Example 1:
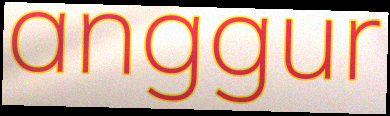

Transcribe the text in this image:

anggur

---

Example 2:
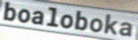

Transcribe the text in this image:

boaloboka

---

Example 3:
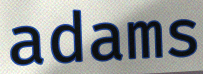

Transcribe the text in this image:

adams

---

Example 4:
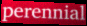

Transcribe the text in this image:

perennial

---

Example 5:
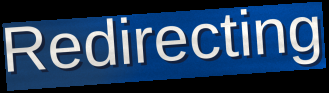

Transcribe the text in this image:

Redirecting